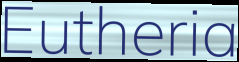
Eutheria